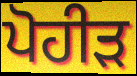
ਪੋਹੀੜ